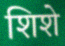
शिशे